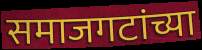
समाजगटांच्या